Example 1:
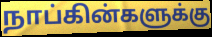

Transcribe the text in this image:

நாப்கின்களுக்கு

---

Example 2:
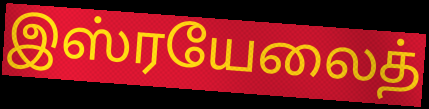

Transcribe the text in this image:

இஸ்ரயேலைத்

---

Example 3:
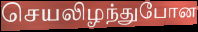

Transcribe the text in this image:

செயலிழந்துபோன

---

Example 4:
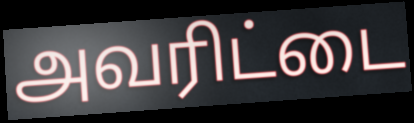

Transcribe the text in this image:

அவரிட்டை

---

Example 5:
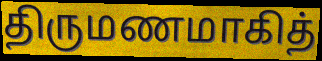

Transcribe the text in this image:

திருமணமாகித்